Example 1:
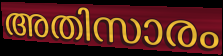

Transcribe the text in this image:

അതിസാരം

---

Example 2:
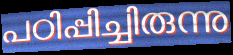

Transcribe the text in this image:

പഠിപ്പിച്ചിരുന്നു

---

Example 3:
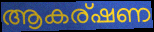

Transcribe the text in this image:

ആകര്ഷണ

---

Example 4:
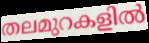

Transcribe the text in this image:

തലമുറകളിൽ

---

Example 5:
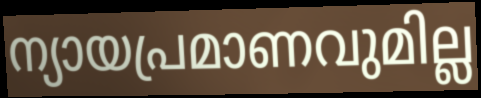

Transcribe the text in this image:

ന്യായപ്രമാണവുമില്ല